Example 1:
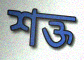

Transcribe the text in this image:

শক্ত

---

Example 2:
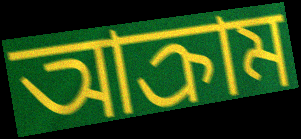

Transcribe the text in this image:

আক্ৰাম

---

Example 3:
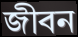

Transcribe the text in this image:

জীবন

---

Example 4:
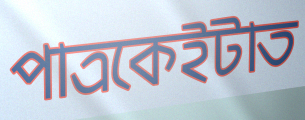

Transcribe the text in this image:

পাত্ৰকেইটাত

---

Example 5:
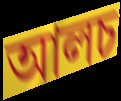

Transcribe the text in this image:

আলচ